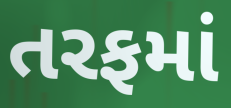
તરફમાં